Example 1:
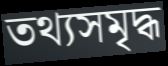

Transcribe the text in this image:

তথ্যসমৃদ্ধ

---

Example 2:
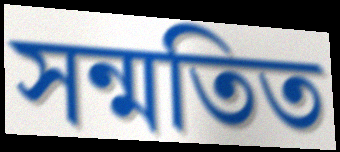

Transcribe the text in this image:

সন্মতিত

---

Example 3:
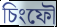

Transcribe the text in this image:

চিংফৌ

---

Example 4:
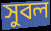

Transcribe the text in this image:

সুবল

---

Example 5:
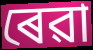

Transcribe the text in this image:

ৰেৱা